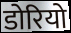
डोरियो